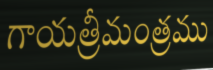
గాయత్రీమంత్రము